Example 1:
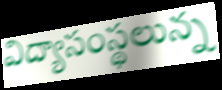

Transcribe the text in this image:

విద్యాసంస్థలున్న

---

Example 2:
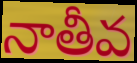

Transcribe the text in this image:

నాతీవ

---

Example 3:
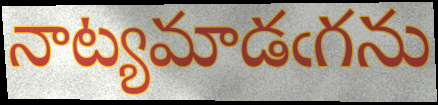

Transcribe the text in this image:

నాట్యమాడఁగను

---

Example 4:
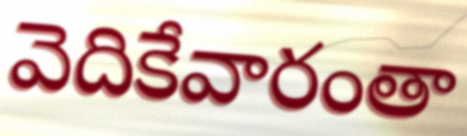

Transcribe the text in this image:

వెదికేవారంతా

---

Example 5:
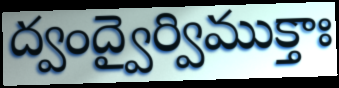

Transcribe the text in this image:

ద్వంద్వైర్విముక్తాః